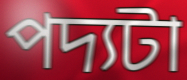
পদ্যটা